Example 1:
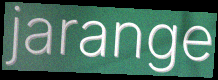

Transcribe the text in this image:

jarange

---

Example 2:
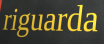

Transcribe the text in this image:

riguarda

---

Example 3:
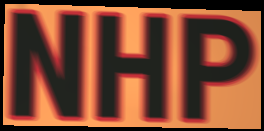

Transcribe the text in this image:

NHP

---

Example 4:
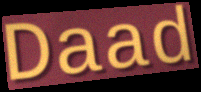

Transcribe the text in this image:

Daad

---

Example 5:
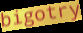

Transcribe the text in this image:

bigotry